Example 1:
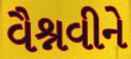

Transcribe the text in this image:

વૈશ્નવીને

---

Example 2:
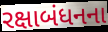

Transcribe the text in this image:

રક્ષાબંધનના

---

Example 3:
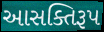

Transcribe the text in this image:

આસક્તિરૂપ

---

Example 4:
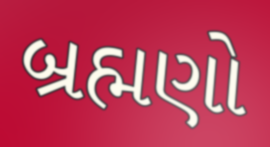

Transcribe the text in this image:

બ્રહ્મણો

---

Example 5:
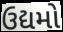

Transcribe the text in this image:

ઉદ્યમો